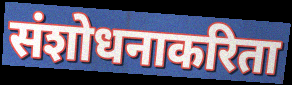
संशोधनाकरिता